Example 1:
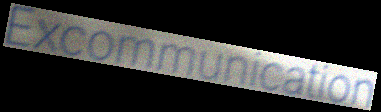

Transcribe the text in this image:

Excommunication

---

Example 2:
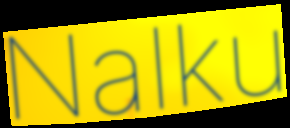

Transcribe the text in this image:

Nalku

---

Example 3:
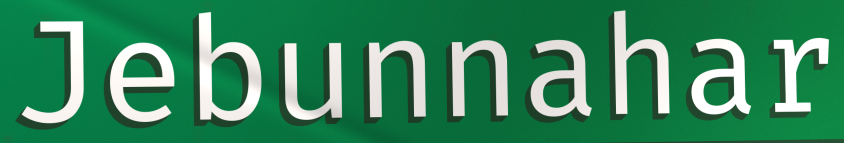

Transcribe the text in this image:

Jebunnahar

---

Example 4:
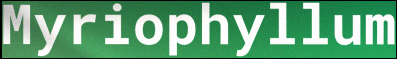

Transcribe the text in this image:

Myriophyllum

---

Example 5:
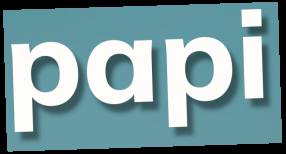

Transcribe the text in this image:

papi